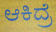
ಆಕಿದ್ರೆ